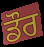
ਡੌਰ